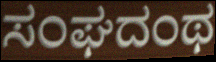
ಸಂಘದಂಥ